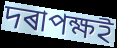
দৰাপক্ষই